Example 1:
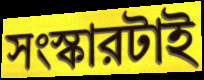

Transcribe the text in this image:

সংস্কারটাই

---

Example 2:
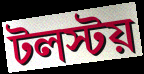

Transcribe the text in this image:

টলস্টয়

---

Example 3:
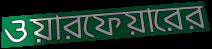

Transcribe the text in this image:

ওয়ারফেয়ারের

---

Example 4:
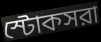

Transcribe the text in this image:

স্টোকসরা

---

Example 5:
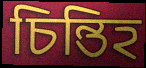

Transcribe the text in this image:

চিন্তিহ